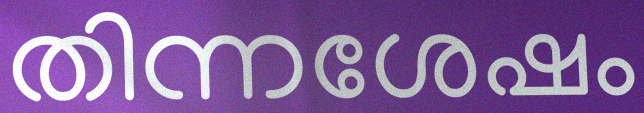
തിന്നശേഷം